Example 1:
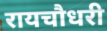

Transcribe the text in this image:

रायचौधरी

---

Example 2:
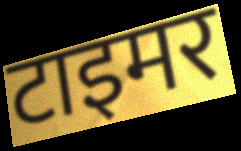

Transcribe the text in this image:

टाइमर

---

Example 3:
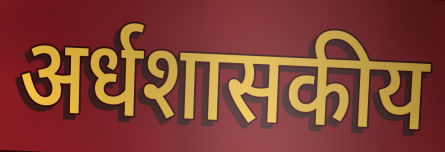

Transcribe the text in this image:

अर्धशासकीय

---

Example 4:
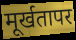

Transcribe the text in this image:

मूर्खतापर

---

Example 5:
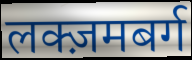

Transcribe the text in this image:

लक्ज़मबर्ग